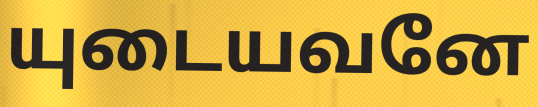
யுடையவனே